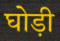
घोड़ी